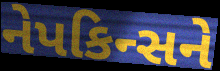
નેપકિન્સને